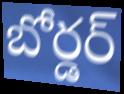
బోర్డర్